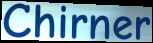
Chirner